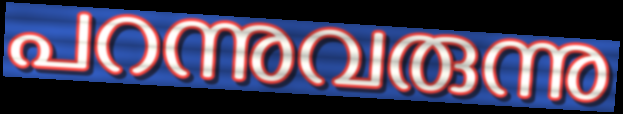
പറന്നുവരുന്നു